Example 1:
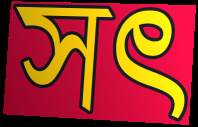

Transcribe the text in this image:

সৎ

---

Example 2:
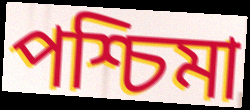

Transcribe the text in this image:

পশ্চিমা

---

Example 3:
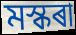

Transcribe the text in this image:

মস্কৰা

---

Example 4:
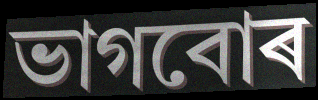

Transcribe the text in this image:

ভাগবোৰ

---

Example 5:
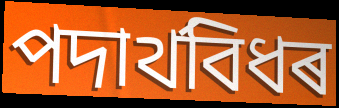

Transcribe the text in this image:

পদাৰ্থবিধৰ